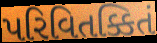
પરિવિતક્કિતં